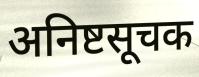
अनिष्टसूचक